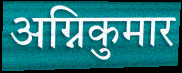
अग्निकुमार